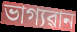
ভাগ্যৱান